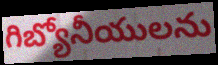
గిబ్యోనీయులను